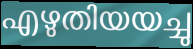
എഴുതിയയച്ചു